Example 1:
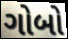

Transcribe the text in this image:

ગોબો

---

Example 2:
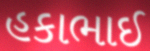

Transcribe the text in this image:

હકાભાઈ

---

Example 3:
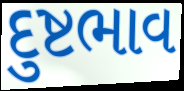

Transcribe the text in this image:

દુષ્ટભાવ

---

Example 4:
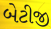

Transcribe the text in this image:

બેટીજી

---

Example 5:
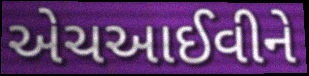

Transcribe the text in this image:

એચઆઈવીને